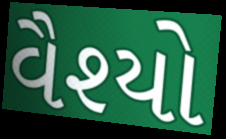
વૈશ્યો